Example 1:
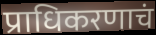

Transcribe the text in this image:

प्राधिकरणाचं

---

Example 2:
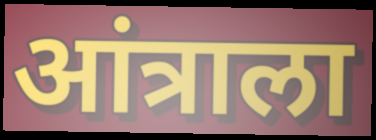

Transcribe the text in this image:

आंत्राला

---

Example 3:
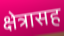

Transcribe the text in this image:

क्षेत्रासह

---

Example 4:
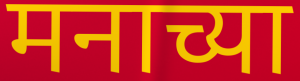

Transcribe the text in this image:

मनाच्या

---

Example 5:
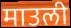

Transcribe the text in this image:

माउली